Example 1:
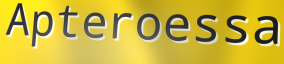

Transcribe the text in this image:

Apteroessa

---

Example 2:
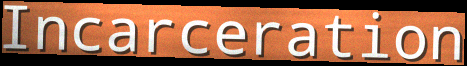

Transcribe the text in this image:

Incarceration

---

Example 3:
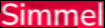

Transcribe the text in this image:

Simmel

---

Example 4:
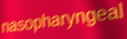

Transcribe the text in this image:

nasopharyngeal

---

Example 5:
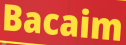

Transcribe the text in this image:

Bacaim